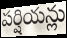
పర్షియన్లు